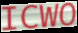
ICWO